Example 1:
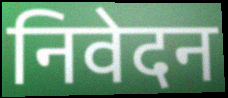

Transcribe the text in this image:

निवेदन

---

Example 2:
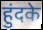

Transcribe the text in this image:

हुंदके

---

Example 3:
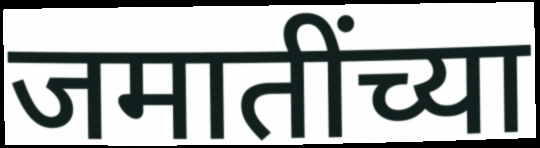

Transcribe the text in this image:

जमातींच्या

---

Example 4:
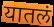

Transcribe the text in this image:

यातलं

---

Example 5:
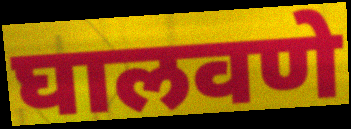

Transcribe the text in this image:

घालवणे